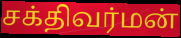
சக்திவர்மன்